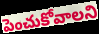
పెంచుకోవాలని